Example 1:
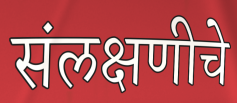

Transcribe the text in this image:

संलक्षणीचे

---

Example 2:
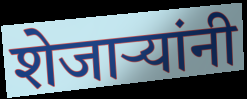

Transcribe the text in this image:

शेजाऱ्यांनी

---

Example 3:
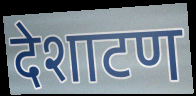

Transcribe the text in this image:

देशाटण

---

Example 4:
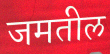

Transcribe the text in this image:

जमतील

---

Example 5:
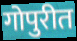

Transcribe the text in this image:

गोपुरीत